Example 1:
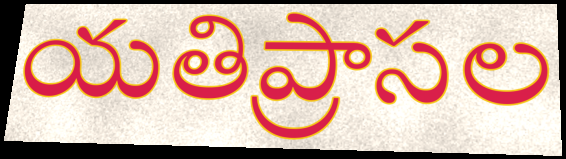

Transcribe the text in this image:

యతిప్రాసల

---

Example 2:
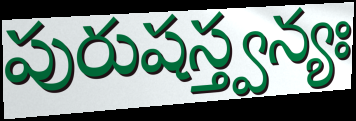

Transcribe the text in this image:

పురుషస్త్వన్యః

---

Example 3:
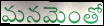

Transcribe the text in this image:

మనమెంతో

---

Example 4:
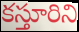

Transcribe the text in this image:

కస్తూరిని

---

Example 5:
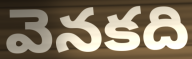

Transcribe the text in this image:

వెనకది